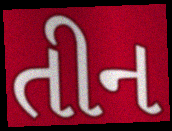
તીન